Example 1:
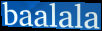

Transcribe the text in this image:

baalala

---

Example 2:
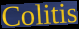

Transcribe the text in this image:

Colitis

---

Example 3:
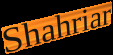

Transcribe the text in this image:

Shahriar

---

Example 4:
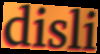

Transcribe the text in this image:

disli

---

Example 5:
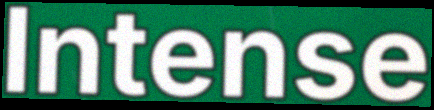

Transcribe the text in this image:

Intense